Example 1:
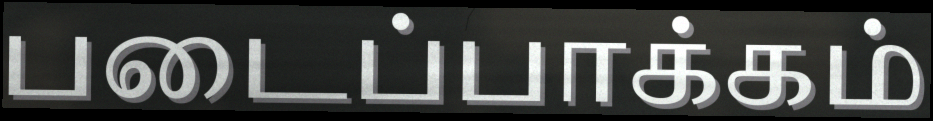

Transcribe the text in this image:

படைப்பாக்கம்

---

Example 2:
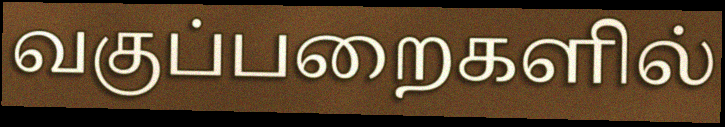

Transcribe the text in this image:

வகுப்பறைகளில்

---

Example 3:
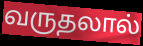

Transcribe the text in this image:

வருதலால்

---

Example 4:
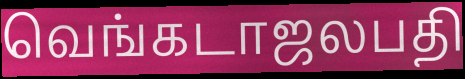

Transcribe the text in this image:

வெங்கடாஜலபதி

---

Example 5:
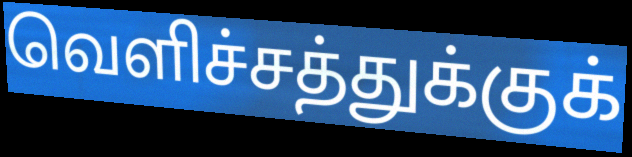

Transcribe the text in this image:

வெளிச்சத்துக்குக்